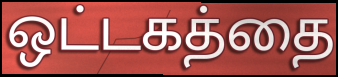
ஒட்டகத்தை